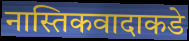
नास्तिकवादाकडे